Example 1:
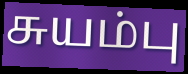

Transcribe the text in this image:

சுயம்பு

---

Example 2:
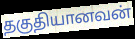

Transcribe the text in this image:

தகுதியானவன்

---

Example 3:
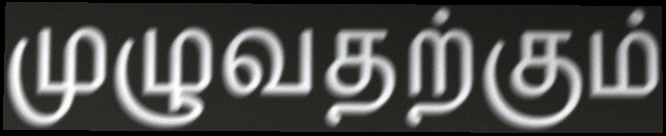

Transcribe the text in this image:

முழுவதற்கும்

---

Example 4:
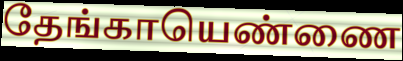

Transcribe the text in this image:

தேங்காயெண்ணை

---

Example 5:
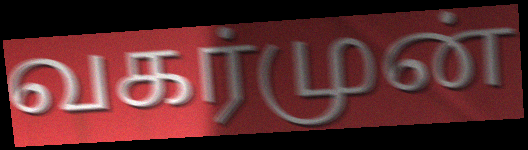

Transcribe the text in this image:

வகர்முன்